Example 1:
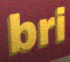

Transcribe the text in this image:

bri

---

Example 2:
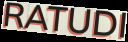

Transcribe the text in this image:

RATUDI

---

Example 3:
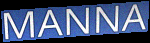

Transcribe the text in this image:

MANNA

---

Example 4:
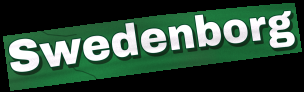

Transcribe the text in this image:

Swedenborg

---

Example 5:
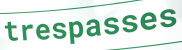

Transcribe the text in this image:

trespasses